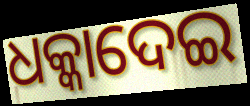
ଧକ୍କାଦେଇ